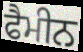
ਫੈਮੀਨ